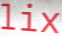
lix